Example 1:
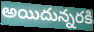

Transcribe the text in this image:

అయిదున్నరకి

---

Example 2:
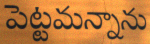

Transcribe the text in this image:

పెట్టమన్నాను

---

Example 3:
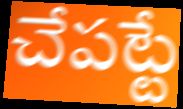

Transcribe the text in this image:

చేపట్టే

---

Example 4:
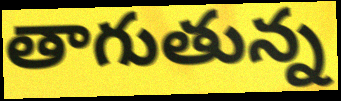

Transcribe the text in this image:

తాగుతున్న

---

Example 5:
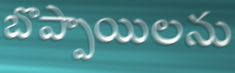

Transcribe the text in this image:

బొప్పాయిలను